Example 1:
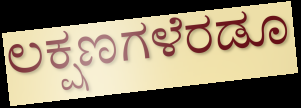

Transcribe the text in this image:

ಲಕ್ಷಣಗಳೆರಡೂ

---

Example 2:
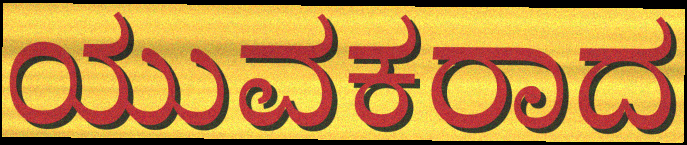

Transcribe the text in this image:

ಯುವಕರಾದ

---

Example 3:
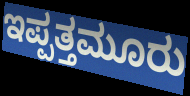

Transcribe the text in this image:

ಇಪ್ಪತ್ತಮೂರು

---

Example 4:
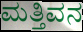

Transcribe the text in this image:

ಮತ್ತಿವನ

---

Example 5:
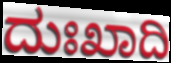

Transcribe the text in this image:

ದುಃಖಾದಿ